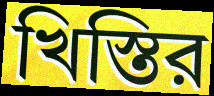
খিস্তির